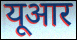
यूआर